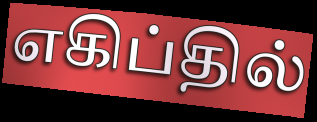
எகிப்தில்